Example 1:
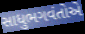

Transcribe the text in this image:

સાધુભગવંતોએ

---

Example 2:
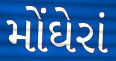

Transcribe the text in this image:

મોંઘેરાં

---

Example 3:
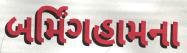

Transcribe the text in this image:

બર્મિંગહામના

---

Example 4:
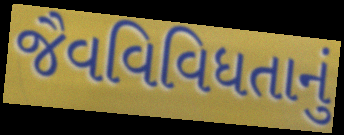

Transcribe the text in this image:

જૈવવિવિધતાનું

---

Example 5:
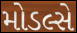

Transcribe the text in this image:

મોડલ્સે